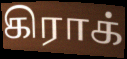
கிராக்